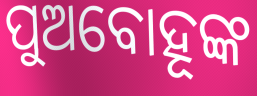
ପୁଅବୋହୂଙ୍କ